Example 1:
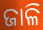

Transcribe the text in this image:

ଜାଳି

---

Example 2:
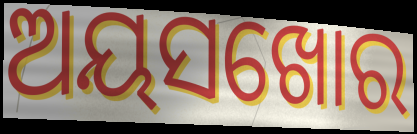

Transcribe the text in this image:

ଅୟସଖୋର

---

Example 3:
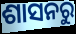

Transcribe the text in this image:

ଶାସନରୁ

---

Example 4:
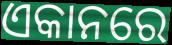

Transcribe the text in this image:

ଏକାନରେ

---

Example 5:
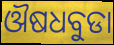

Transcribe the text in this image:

ଔଷଧବୁଡା